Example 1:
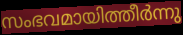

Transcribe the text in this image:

സംഭവമായിത്തീർന്നു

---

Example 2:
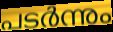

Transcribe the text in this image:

പടർന്നും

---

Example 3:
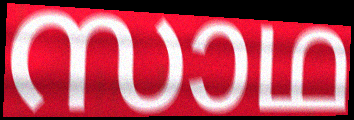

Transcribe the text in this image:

സാഥ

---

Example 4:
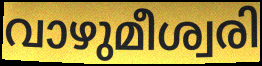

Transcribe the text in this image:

വാഴുമീശ്വരി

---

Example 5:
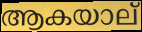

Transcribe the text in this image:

ആകയാല്